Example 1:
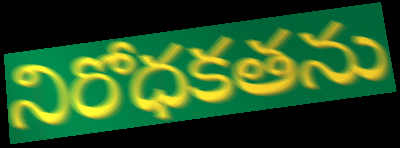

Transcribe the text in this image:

నిరోధకతను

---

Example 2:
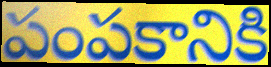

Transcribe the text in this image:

పంపకానికి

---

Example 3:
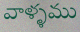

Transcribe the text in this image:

వాళ్ళము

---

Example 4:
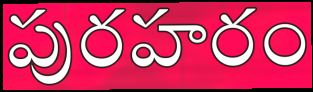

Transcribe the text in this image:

పురహరం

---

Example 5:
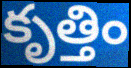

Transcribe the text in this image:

కృత్తిం